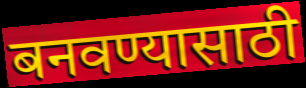
बनवण्‍यासाठी